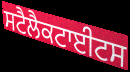
ਸਟੈਲੈਕਟਾਈਟਸ